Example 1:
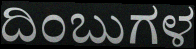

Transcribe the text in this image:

ದಿಂಬುಗಳ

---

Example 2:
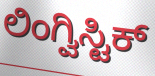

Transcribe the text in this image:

ಲಿಂಗ್ವಿಸ್ಟಿಕ್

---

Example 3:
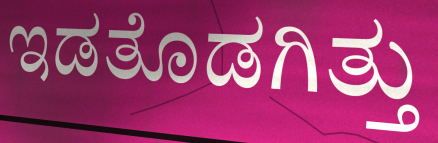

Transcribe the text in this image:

ಇಡತೊಡಗಿತ್ತು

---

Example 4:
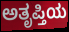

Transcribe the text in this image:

ಅತೃಪ್ತಿಯ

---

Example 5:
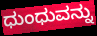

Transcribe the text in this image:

ಧುಂಧುವನ್ನು